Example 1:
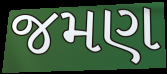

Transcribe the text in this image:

જમણ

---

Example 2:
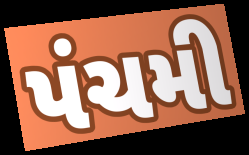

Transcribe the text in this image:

પંચમી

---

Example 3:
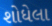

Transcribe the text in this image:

શોધેલા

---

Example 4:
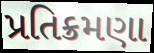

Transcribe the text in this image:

પ્રતિક્રમણા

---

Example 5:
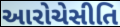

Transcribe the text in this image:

આરોચેસીતિ